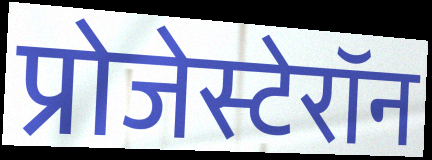
प्रोजेस्टेरॉन